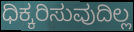
ಧಿಕ್ಕರಿಸುವುದಿಲ್ಲ